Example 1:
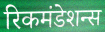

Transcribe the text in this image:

रिकमंडेशन्स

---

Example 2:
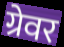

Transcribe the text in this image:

ग्रेवर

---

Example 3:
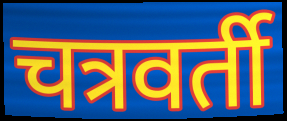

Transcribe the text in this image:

चत्रवर्ती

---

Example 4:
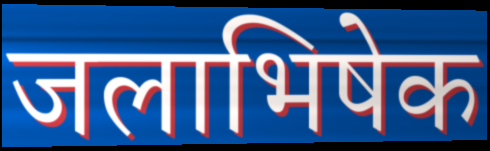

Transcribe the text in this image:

जलाभिषेक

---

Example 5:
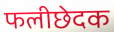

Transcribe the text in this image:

फलीछेदक